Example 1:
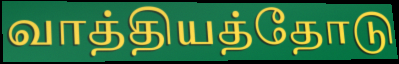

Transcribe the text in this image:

வாத்தியத்தோடு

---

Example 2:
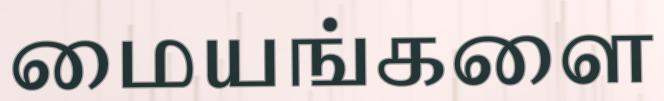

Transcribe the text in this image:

மையங்களை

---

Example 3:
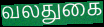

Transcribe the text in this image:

வலதுகை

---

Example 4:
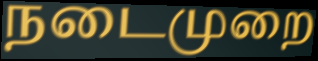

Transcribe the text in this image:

நடைமுறை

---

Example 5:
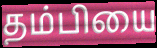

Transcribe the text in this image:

தம்பியை